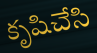
కృషిచేసి